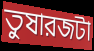
তুষারজটা